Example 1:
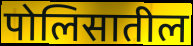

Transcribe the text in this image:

पोलिसातील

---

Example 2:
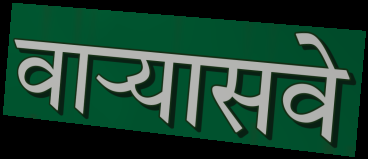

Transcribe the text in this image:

वाऱ्यासवे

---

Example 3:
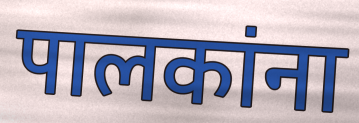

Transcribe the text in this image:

पालकांना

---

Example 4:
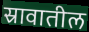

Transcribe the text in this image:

स्रावातील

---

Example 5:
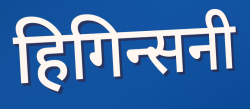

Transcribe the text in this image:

हिगिन्सनी